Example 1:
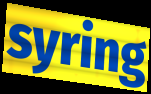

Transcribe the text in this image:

syring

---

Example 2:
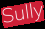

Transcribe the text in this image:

Sully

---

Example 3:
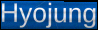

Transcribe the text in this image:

Hyojung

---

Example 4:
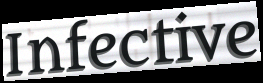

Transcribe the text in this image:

Infective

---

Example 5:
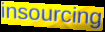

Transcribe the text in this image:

insourcing